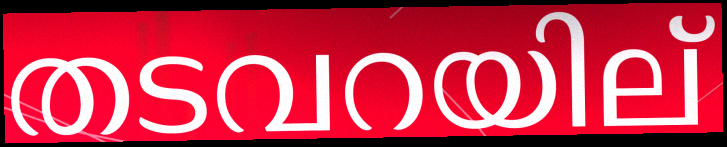
തടവറയില്